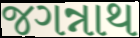
જગન્નાથ